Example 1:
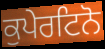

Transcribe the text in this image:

ਕੁਪੇਰਟਿਨੋ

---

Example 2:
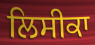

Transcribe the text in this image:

ਲਿਸੀਕਾ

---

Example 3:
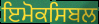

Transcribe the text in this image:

ਇਮੋਕਸਿਬਲ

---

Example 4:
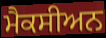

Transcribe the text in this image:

ਮੈਕਸੀਅਨ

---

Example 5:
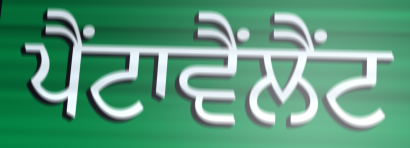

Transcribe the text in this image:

ਪੈਂਟਾਵੈਂਲੈਂਟ